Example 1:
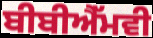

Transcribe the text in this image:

ਬੀਬੀਐੱਮਵੀ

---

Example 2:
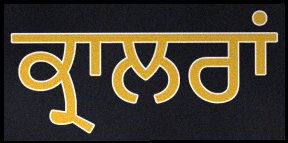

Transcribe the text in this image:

ਕ੍ਰਾਲਰਾਂ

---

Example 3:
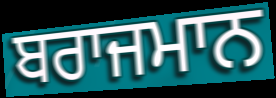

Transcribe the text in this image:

ਬਰਾਜਮਾਨ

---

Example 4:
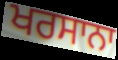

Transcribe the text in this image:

ਖਰਸਾਨਾ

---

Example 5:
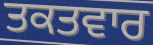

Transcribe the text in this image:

ਤਕਤਵਾਰ